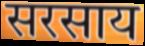
सरसाय